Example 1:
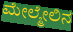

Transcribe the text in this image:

ಮೇಲ್ಮೇಲಿನ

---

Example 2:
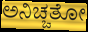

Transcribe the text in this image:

ಅನಿಚ್ಚತೋ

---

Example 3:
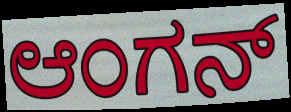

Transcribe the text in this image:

ಆಂಗನ್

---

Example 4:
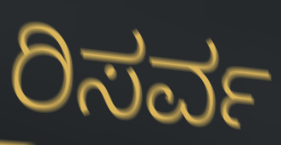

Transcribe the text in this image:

ರಿಸರ್ವ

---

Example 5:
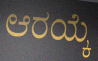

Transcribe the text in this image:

ಆರಯ್ಕೆ